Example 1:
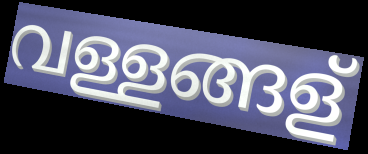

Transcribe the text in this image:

വള്ളങ്ങള്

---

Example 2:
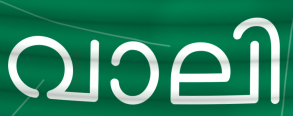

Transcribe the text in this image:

വാലി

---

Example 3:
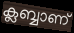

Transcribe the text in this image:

ക്ലബ്ബാണ്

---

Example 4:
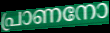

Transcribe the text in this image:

പ്രാണനോ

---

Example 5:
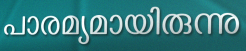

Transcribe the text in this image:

പാരമ്യമായിരുന്നു